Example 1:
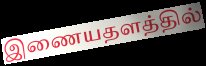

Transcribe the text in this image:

இணையதளத்தில்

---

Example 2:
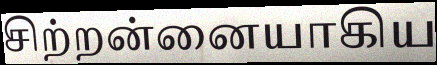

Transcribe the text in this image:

சிற்றன்னையாகிய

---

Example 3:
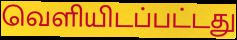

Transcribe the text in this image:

வெளியிடப்பட்டது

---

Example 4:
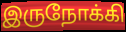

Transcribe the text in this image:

இருநோக்கி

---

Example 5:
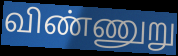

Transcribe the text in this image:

விண்ணுறு